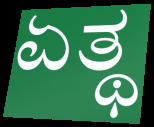
ಏತ್ಥ